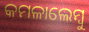
କମଳାଲେମ୍ୱୁ